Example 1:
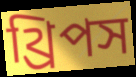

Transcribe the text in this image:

থ্রিপস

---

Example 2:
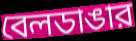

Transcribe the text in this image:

বেলডাঙার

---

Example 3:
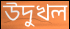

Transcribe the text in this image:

উদুখল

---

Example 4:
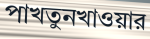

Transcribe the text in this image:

পাখতুনখাওয়ার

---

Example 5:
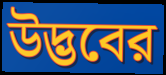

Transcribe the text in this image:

উদ্ভবের